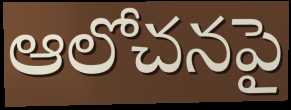
ఆలోచనపై